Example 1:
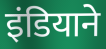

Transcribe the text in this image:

इंडियाने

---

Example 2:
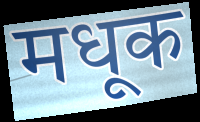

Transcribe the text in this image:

मधूक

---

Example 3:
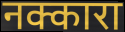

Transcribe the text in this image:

नक्कारा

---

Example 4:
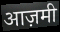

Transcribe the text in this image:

आज़मी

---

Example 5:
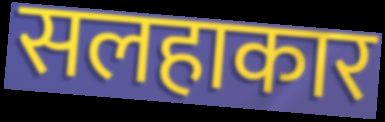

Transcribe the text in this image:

सलहाकार